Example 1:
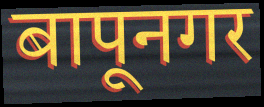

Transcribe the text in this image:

बापूनगर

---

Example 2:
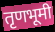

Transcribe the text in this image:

तृणभूमी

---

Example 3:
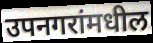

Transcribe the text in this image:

उपनगरांमधील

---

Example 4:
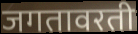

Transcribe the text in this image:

जगतावरती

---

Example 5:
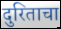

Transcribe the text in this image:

दुरिताचा